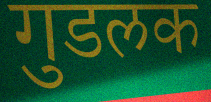
गुडलक